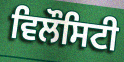
ਵਿਲੌਸਿਟੀ